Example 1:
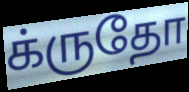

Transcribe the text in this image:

க்ருதோ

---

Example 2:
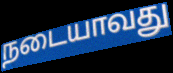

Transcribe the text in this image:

நடையாவது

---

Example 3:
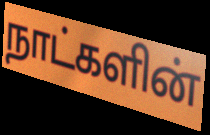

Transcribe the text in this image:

நாட்களின்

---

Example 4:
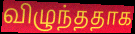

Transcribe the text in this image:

விழுந்ததாக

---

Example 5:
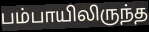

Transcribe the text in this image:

பம்பாயிலிருந்த